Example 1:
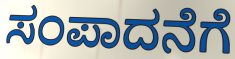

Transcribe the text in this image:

ಸಂಪಾದನೆಗೆ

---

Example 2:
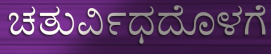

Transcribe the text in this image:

ಚತುರ್ವಿಧದೊಳಗೆ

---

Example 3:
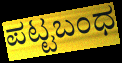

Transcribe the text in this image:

ಪಟ್ಟಬಂಧ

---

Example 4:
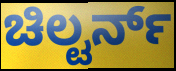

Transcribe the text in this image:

ಚಿಲ್ಟರ್ನ್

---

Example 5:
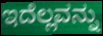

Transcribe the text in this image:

ಇದೆಲ್ಲವನ್ನು